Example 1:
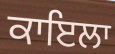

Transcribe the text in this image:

ਕਾਇਲਾ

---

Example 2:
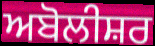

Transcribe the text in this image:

ਅਬੋਲੀਸ਼ਰ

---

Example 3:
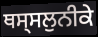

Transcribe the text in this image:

ਥਸ੍ਸਲੁਨੀਕੇ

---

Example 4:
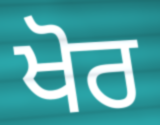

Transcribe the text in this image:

ਖੋਰ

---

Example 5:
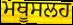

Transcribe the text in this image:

ਮਥੂਸਲਹ